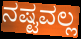
ನಷ್ಟವಲ್ಲ